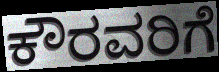
ಕೌರವರಿಗೆ